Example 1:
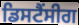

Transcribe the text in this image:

ਡਿਸਟੈਂਸੀਗ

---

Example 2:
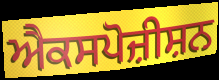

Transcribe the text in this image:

ਐਕਸਪੋਜ਼ੀਸ਼ਨ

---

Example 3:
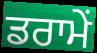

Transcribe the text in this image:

ਡਰਾਮੇਂ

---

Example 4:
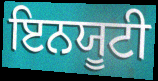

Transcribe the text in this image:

ਇਨਯੂਟੀ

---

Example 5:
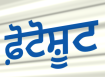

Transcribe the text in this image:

ਫ਼ੋਟੋਸ਼ੂਟ